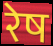
रेष